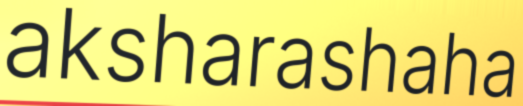
aksharashaha